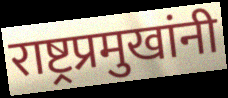
राष्ट्रप्रमुखांनी